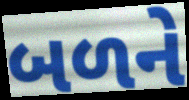
બળને